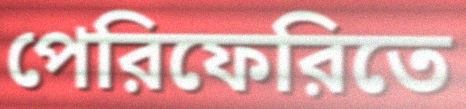
পেরিফেরিতে